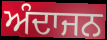
ਅੰਦਾਜਨ